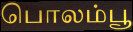
பொலம்பூ